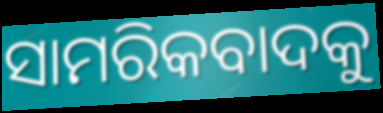
ସାମରିକବାଦକୁ